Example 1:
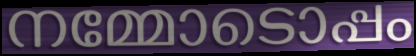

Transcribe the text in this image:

നമ്മോടൊപ്പം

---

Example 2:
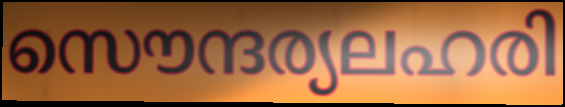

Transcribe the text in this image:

സൌന്ദര്യലഹരി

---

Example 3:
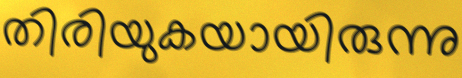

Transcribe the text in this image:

തിരിയുകയായിരുന്നു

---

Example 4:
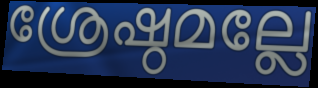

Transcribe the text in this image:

ശ്രേഷ്ഠമല്ലേ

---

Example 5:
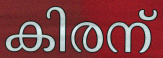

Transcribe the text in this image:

കിരന്